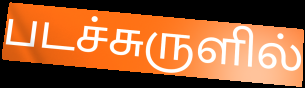
படச்சுருளில்